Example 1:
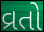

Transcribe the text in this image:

વ્રતો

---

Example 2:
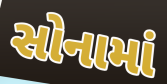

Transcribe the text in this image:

સોનામાં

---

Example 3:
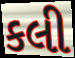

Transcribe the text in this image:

કલી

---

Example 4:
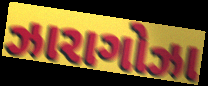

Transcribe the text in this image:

ઝારાગોઝા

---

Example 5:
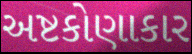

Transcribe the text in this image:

અષ્ટકોણાકાર